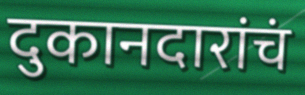
दुकानदारांचं